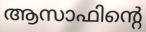
ആസാഫിന്റെ